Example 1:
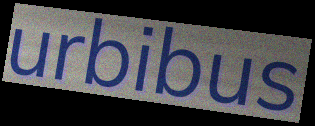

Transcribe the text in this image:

urbibus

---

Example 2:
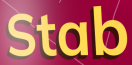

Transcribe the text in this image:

Stab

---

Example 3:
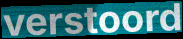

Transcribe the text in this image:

verstoord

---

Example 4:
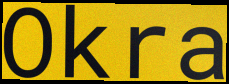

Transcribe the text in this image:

Okra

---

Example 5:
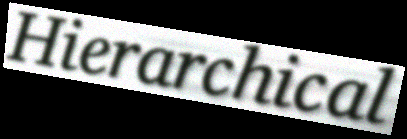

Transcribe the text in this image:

Hierarchical